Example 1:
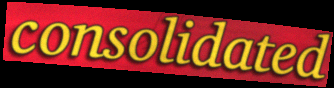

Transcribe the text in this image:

consolidated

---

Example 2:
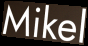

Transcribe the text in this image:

Mikel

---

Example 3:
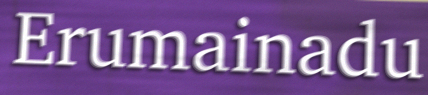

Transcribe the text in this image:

Erumainadu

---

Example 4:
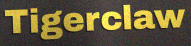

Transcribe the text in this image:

Tigerclaw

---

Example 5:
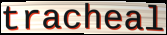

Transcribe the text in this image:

tracheal